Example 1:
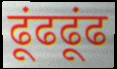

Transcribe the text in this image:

ढूंढढूंढ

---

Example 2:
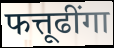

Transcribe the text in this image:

फत्तूढींगा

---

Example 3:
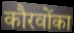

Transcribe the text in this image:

कौरवोंका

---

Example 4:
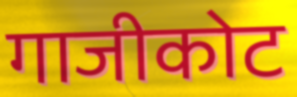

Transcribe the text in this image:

गाजीकोट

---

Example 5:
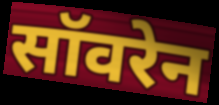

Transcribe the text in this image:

सॉवरेन